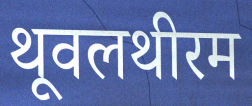
थूवलथीरम